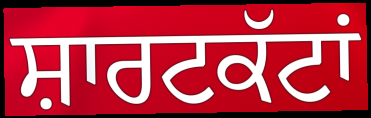
ਸ਼ਾਰਟਕੱਟਾਂ